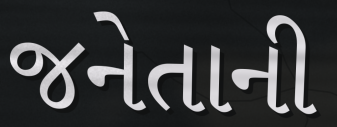
જનેતાની